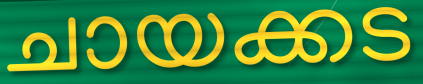
ചായക്കട